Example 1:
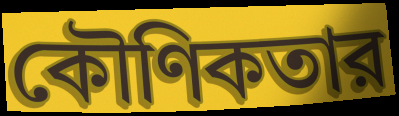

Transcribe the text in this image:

কৌণিকতার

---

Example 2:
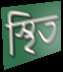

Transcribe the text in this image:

স্থিত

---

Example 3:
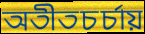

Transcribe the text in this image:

অতীতচর্চায়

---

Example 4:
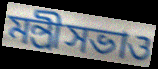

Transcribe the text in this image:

মন্ত্রীসভাও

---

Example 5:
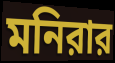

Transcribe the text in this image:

মনিরার